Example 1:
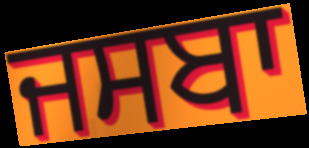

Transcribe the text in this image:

ਜਸਬਾ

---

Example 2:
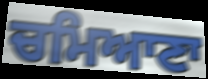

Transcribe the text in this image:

ਚਮਿਆਣਾ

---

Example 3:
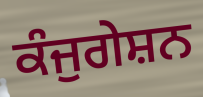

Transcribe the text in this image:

ਕੰਜੁਗੇਸ਼ਨ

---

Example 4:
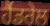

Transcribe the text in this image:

ਹੈਂਡਰੇਲ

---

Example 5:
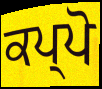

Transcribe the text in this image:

ਕਪ੍ਪੋ